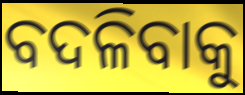
ବଦଳିବାକୁ